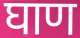
घाण